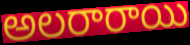
అలరారాయి